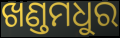
ଖଣ୍ଡମଧୁର